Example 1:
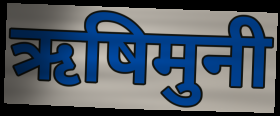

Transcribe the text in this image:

ऋषिमुनी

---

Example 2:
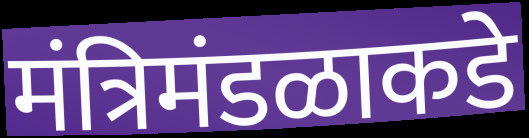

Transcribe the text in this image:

मंत्रिमंडळाकडे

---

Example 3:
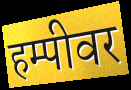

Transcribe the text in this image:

हम्पीवर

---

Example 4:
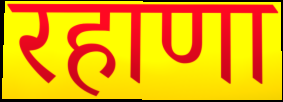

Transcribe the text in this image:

रहाणा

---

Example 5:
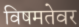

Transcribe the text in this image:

विषमतेवर